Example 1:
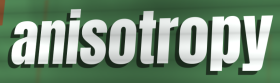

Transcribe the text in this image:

anisotropy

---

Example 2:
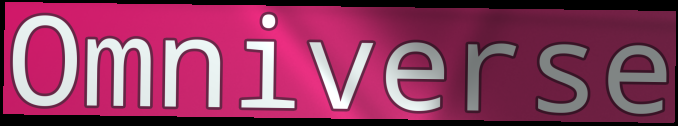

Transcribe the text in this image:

Omniverse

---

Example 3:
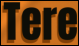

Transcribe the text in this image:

Tere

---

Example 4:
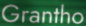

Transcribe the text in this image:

Grantho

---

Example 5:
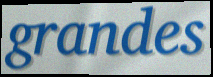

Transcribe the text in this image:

grandes